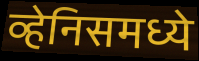
व्हेनिसमध्ये